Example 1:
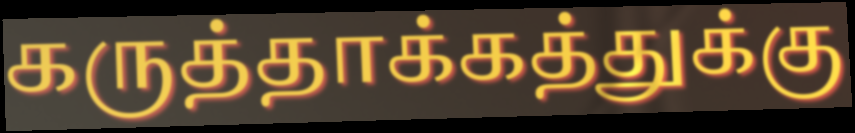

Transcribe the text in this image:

கருத்தாக்கத்துக்கு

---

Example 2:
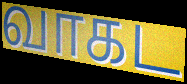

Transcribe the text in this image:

வாகட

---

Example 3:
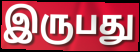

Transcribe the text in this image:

இருபது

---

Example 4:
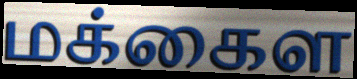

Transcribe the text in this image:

மக்கைள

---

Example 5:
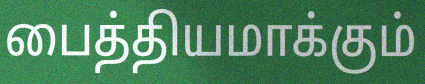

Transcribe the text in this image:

பைத்தியமாக்கும்